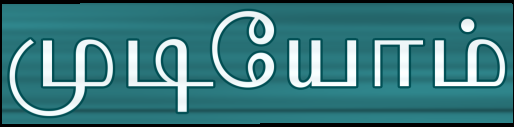
முடியோம்